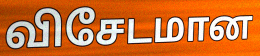
விசேடமான